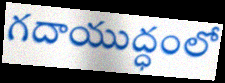
గదాయుద్ధంలో